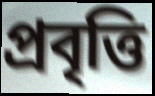
প্ৰবৃত্তি